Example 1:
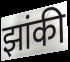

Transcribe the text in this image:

झांकी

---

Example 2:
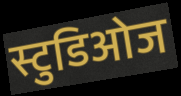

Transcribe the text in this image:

स्टुडिओज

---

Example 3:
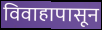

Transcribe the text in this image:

विवाहापासून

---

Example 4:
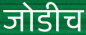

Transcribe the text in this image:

जोडीच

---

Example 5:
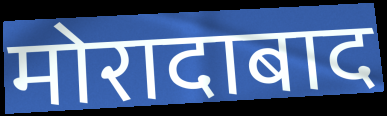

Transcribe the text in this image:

मोरादाबाद